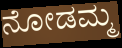
ನೋಡಮ್ಮ